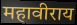
महावीराय